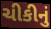
ચીકીનું